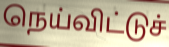
நெய்விட்டுச்